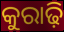
କୁରାଢ଼ି